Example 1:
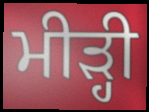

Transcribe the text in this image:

ਮੀੜ੍ਹੀ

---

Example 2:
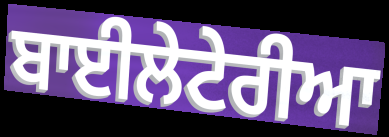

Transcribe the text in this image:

ਬਾਈਲੇਟੇਰੀਆ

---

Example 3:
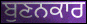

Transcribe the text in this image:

ਬੁਣਨਕਾਰ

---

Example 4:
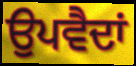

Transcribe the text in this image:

ਉਪਵੈਦਾਂ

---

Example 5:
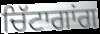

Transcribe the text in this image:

ਚਿੱਟਾਗਾਂਗ